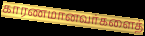
காரணமானவர்களைத்